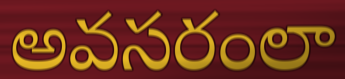
అవసరంలా